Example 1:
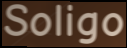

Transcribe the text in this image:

Soligo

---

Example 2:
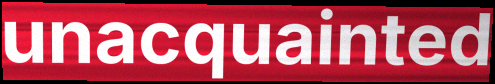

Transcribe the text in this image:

unacquainted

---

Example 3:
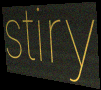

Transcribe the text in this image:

stiry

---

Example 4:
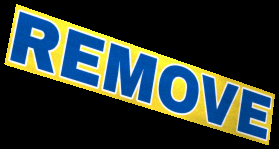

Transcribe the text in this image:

REMOVE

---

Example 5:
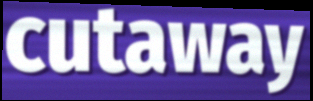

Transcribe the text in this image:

cutaway